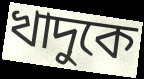
খাদুকে